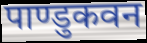
पाण्डुकवन